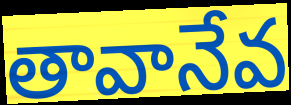
తావానేవ